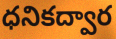
ధనికద్వార